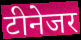
टीनेजर